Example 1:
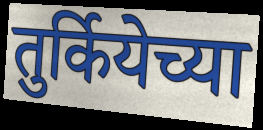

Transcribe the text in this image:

तुर्कियेच्या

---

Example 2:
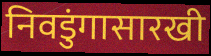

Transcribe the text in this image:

निवडुंगासारखी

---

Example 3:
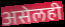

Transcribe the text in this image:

असेलही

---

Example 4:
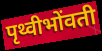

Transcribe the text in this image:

पृथ्वीभोंवती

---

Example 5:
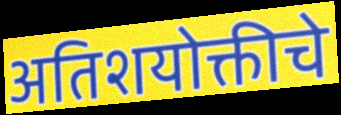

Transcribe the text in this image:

अतिशयोक्तीचे